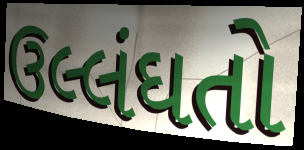
ઉલ્લંઘતો